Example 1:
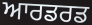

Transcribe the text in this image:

ਆਰਡਰਡ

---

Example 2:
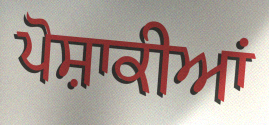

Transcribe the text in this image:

ਪੋਸ਼ਾਕੀਆਂ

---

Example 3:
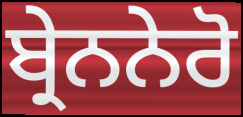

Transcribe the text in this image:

ਬ੍ਰੇਨਨੇਰੋ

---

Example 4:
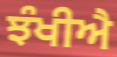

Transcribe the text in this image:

ਝੰਖੀਐ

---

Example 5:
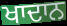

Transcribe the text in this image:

ਖਾਦਾਨ